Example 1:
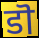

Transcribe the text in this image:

डॊ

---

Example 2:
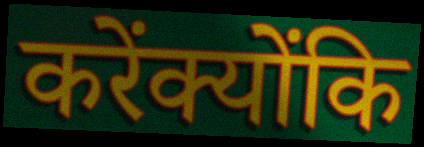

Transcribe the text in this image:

करेंक्योंकि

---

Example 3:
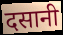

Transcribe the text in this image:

दसानी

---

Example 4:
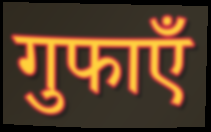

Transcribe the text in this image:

गुफाएँ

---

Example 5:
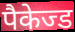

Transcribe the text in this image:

पैकेज्ड